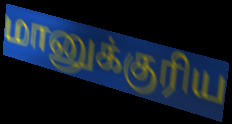
மானுக்குரிய